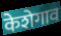
केशेगाव